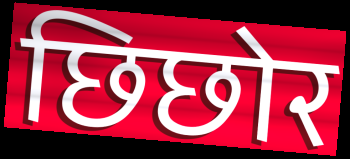
छिछोर